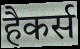
हैकर्स